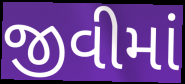
જીવીમાં